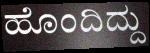
ಹೊಂದಿದ್ದು